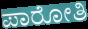
ಪಾರೋತಿ